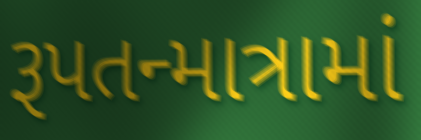
રૂપતન્માત્રામાં